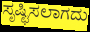
ಸೃಷ್ಟಿಸಲಾಗದು